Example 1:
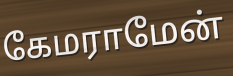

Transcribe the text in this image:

கேமராமேன்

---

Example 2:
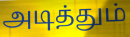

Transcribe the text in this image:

அடித்தும்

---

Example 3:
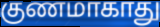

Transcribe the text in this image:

குணமாகாது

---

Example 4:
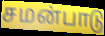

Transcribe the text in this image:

சமன்பாடு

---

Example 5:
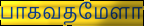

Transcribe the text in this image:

பாகவதமேளா